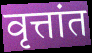
वृत्तांत